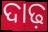
ଦାଢ଼